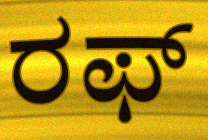
ರಫ್